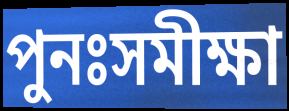
পুনঃসমীক্ষা